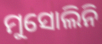
ମୁସୋଲିନି